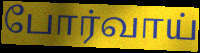
போர்வாய்